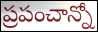
ప్రపంచాన్నో